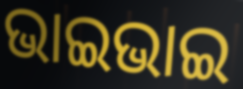
ଭାଇଭାଇ